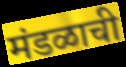
मंडळाची